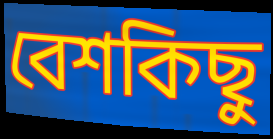
বেশকিছু